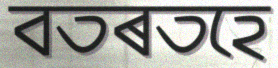
বতৰতহে